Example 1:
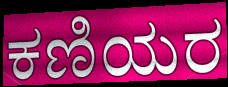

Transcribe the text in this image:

ಕಣಿಯರ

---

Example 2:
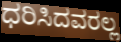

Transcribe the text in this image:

ಧರಿಸಿದವರಲ್ಲ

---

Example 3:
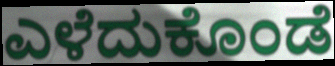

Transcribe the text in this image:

ಎಳೆದುಕೊಂಡೆ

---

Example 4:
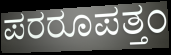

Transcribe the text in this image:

ಪರರೂಪತ್ತಂ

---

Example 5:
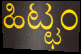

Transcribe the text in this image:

ಹಿಟ್ಟಂ